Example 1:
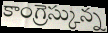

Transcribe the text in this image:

కాంగ్రెస్కున్న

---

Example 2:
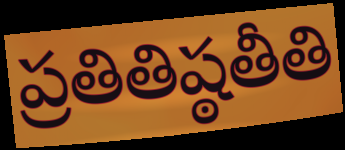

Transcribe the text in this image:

ప్రతితిష్ఠతీతి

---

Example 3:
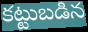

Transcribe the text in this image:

కట్టుబడిన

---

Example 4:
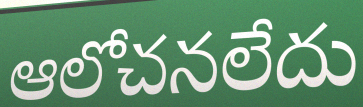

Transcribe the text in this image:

ఆలోచనలేదు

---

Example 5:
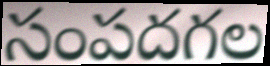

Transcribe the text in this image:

సంపదగల